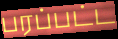
பரப்பட்ட